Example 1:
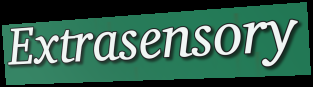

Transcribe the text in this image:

Extrasensory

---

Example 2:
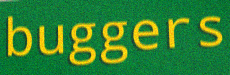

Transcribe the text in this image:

buggers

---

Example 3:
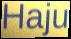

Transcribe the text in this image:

Haju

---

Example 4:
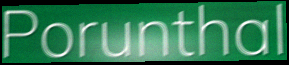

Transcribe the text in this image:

Porunthal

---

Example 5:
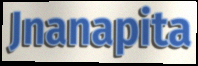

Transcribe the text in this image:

Jnanapita